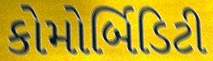
કોમોર્બિડિટી